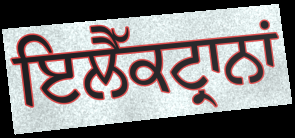
ਇਲੈੱਕਟ੍ਰਾਨਾਂ